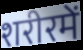
शरीरमें